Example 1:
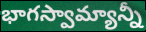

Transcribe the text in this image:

భాగస్వామ్యాన్నీ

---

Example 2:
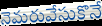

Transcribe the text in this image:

నెమరువేసుకొనే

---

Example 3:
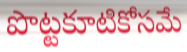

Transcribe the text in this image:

పొట్టకూటికోసమే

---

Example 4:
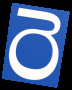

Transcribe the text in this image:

రె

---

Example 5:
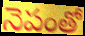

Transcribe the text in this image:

నెపంతో